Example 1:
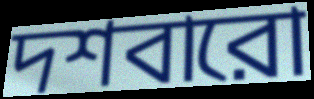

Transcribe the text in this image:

দশবারো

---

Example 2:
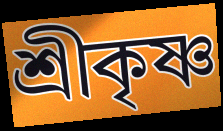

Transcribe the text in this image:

শ্রীকৃষ্ণ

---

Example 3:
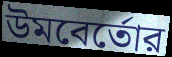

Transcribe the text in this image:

উমবের্তোর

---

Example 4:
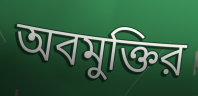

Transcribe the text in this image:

অবমুক্তির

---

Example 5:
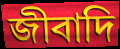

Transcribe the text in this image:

জীবাদি